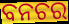
ବନଚର